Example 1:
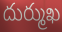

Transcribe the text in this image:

దుర్ముఖ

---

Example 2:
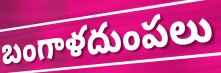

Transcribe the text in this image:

బంగాళదుంపలు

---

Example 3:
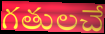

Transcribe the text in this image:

గతులచే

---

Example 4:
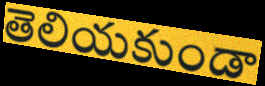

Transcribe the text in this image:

తెలియకుండా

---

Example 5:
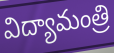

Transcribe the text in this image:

విద్యామంత్రి